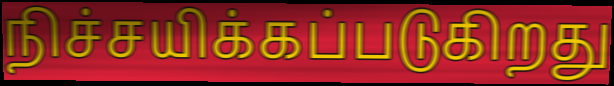
நிச்சயிக்கப்படுகிறது